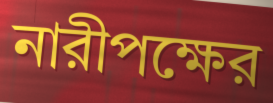
নারীপক্ষের